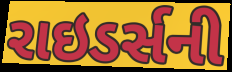
રાઇડર્સની